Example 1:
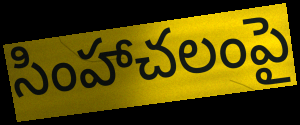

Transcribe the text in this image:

సింహాచలంపై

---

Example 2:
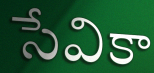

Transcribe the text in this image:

సేవికా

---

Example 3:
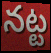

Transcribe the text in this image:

నట్ట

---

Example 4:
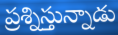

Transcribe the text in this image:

ప్రశ్నిస్తున్నాడు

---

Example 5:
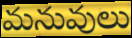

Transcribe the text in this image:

మనువులు